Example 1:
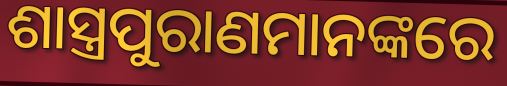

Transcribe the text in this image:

ଶାସ୍ତ୍ରପୁରାଣମାନଙ୍କରେ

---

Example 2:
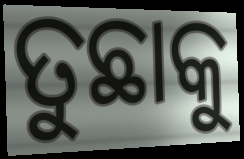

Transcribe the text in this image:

ତୁଛାକୁ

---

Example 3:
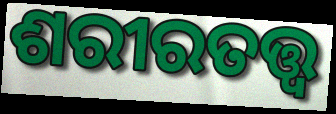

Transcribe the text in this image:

ଶରୀରତତ୍ତ୍ୱ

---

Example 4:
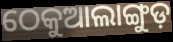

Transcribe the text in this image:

ଠେକୁଆଲାଙ୍ଗୁଡ଼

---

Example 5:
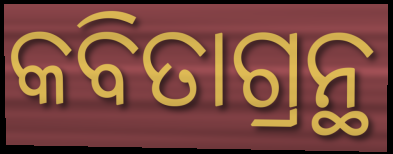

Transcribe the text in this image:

କବିତାଗ୍ରନ୍ଥ